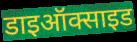
डाइऑक्साइड